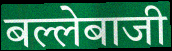
बल्लेबाजी